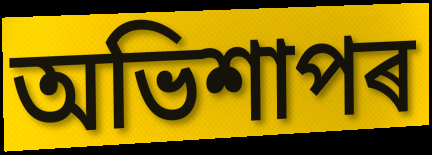
অভিশাপৰ